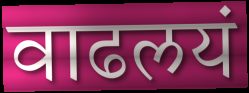
वाढलयं